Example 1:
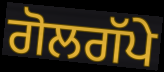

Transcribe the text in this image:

ਗੋਲਗੱਪੇ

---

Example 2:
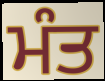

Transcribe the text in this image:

ਮੰਤ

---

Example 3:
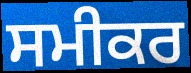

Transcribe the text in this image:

ਸਮੀਕਰ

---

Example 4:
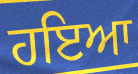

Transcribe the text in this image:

ਹਇਆ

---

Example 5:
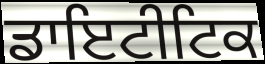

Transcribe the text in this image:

ਡਾਇਟੀਟਿਕ